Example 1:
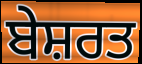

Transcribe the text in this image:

ਬੇਸ਼ਰਤ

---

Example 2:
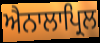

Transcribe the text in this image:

ਐਨਾਲਾਪ੍ਰਿਲ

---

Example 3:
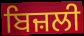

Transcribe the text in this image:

ਬਿਜ਼ਲੀ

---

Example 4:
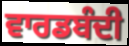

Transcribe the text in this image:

ਵਾਰਡਬੰਦੀ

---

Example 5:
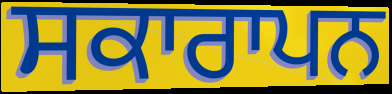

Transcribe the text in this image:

ਸਕਾਰਾਪਨ